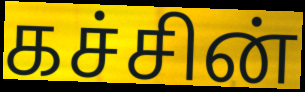
கச்சின்